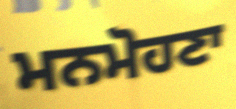
ਮਨਮੋਹਣਾ